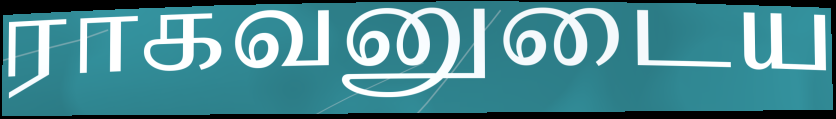
ராகவனுடைய